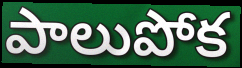
పాలుపోక